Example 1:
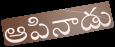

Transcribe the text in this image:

ఆపినాడు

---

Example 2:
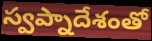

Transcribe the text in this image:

స్వప్నాదేశంతో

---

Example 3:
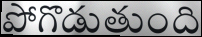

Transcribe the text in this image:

పోగొడుతుంది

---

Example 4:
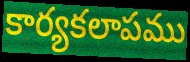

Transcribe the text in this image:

కార్యకలాపము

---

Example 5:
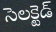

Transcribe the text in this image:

సెలక్టెడ్